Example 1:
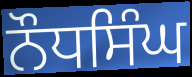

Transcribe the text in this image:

ਨੌਧਸਿੰਘ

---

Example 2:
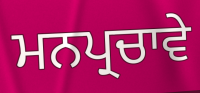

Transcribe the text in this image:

ਮਨਪ੍ਰਚਾਵੇ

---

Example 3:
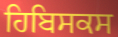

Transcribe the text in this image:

ਹਿਬਿਸਕਸ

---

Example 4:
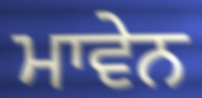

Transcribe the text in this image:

ਮਾਵੇਨ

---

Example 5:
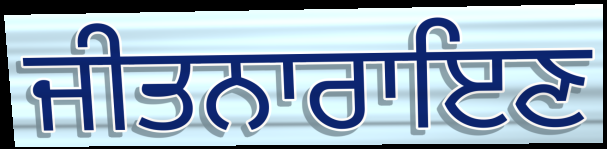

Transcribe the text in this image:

ਜੀਤਨਾਰਾਇਣ